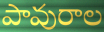
పావురాల